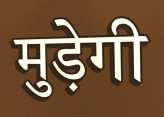
मुड़ेगी